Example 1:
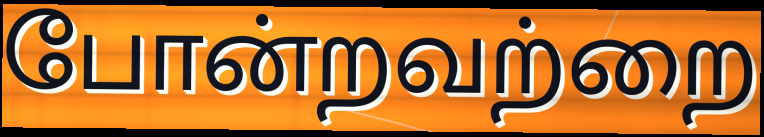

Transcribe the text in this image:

போன்றவற்றை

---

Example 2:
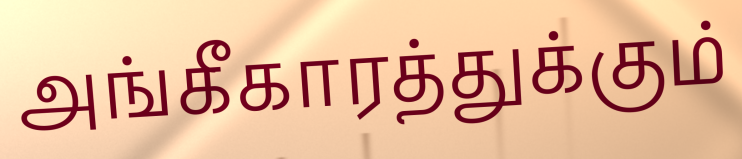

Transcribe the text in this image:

அங்கீகாரத்துக்கும்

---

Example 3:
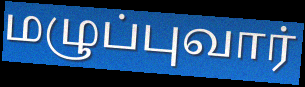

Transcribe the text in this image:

மழுப்புவார்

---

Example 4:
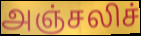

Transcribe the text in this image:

அஞ்சலிச்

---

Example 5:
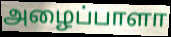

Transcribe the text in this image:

அழைப்பாளா